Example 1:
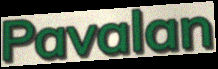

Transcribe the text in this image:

Pavalan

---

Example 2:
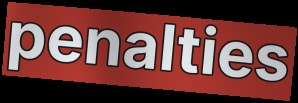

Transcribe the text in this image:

penalties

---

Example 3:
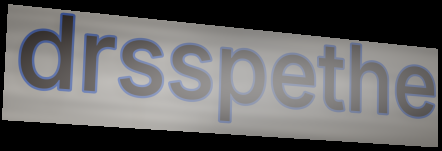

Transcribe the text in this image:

drsspethe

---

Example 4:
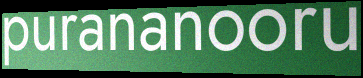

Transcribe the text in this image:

purananooru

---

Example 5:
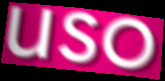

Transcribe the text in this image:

uso